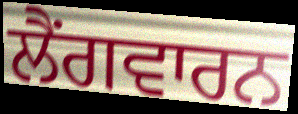
ਲੈਂਗਵਾਰਨ